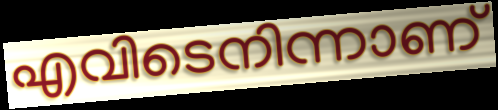
എവിടെനിന്നാണ്